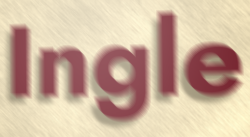
Ingle